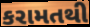
કરામતથી